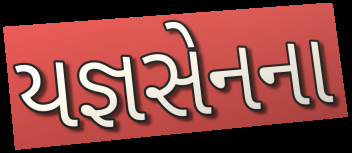
યજ્ઞસેનના